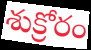
శుక్రోరం